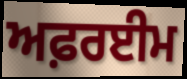
ਅਫ਼ਰਈਮ